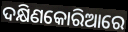
ଦକ୍ଷିଣକୋରିଆରେ